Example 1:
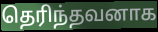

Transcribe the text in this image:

தெரிந்தவனாக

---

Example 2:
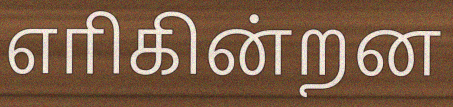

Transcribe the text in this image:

எரிகின்றன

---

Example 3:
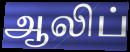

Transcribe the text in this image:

ஆலிப்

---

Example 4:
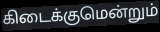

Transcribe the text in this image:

கிடைக்குமென்றும்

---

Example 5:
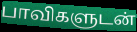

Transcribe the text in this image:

பாவிகளுடன்